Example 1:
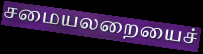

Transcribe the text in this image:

சமையலறையைச்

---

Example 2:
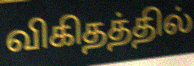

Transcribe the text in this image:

விகிதத்தில்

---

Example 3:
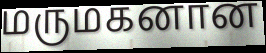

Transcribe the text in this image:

மருமகனான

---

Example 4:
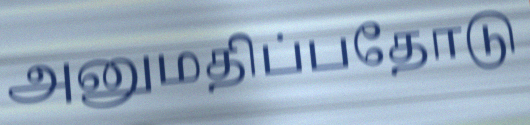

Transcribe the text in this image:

அனுமதிப்பதோடு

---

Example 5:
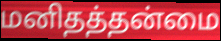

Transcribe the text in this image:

மனிதத்தன்மை